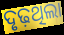
ଦୃଢ଼ଥିଲା